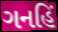
ગનહિં